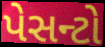
પેસન્ટો